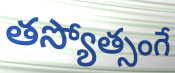
తస్యోత్సంగే